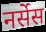
नर्सेस